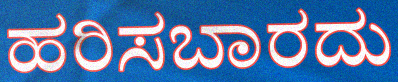
ಹರಿಸಬಾರದು